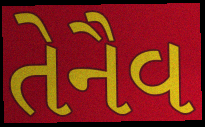
તેનૈવ